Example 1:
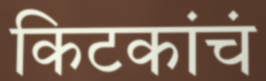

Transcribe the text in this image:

किटकांचं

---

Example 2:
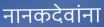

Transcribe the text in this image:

नानकदेवांना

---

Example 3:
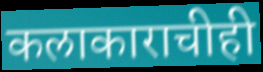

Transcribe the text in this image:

कलाकाराचीही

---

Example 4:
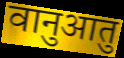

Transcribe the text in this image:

वानुआतु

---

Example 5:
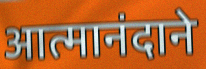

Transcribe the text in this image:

आत्मानंदाने